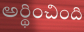
అర్థించింది